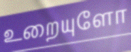
உறையுளோ